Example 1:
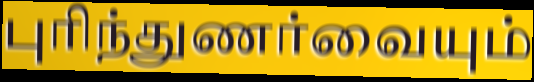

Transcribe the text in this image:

புரிந்துணர்வையும்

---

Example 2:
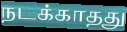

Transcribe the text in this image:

நடக்காதது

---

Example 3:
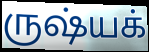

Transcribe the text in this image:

ருஷ்யக்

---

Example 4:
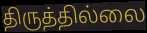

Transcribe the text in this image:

திருத்தில்லை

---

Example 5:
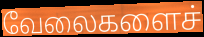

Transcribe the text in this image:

வேலைகளைச்